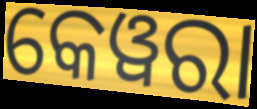
କେୱରା